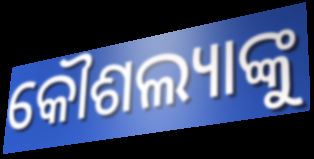
କୌଶଲ୍ୟାଙ୍କୁ